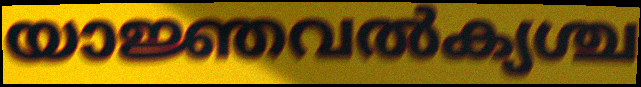
യാജ്ഞവൽക്യശ്ച